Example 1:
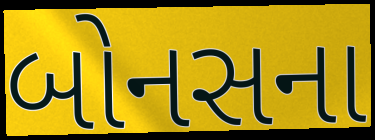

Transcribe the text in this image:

બોનસના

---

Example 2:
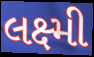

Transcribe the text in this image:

લક્ષ્મી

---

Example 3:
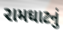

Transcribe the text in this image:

રામઘાટનું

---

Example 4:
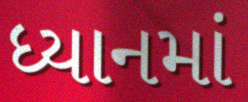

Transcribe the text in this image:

ધ્યાનમાં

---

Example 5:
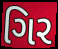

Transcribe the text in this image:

ગિર